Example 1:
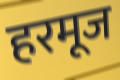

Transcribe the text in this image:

हरमूज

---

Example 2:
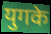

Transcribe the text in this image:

युगके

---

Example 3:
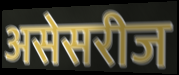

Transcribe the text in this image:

असेसरीज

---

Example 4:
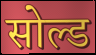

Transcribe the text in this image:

सोल्ड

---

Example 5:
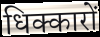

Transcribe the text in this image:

धिक्कारों